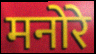
मनोरे